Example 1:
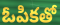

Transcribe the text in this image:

ఓపికతో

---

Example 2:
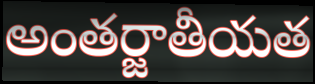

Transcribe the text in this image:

అంతర్జాతీయత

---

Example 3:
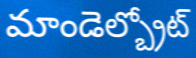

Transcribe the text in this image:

మాండెల్బ్రోట్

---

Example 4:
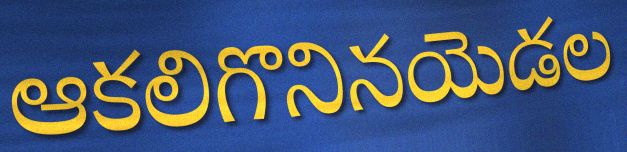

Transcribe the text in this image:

ఆకలిగొనినయెడల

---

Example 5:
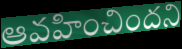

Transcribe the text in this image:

ఆవహించిందని